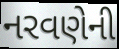
નરવણેની